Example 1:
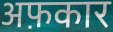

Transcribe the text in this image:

अफ़कार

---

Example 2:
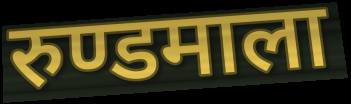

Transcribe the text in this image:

रुण्डमाला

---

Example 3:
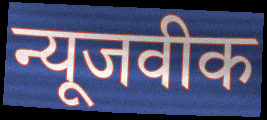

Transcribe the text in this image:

न्यूजवीक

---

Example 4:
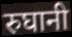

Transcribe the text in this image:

रुघानी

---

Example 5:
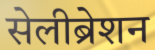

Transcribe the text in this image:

सेलीब्रेशन